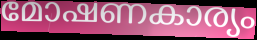
മോഷണകാര്യം